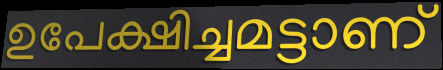
ഉപേക്ഷിച്ചമട്ടാണ്